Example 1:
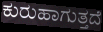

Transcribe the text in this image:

ಕುರುಹಾಗುತ್ತದೆ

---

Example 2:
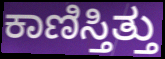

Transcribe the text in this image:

ಕಾಣಿಸ್ತಿತ್ತು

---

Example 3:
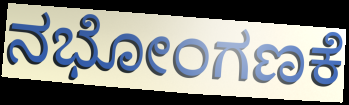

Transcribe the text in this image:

ನಭೋಂಗಣಕೆ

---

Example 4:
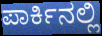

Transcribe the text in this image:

ಪಾರ್ಕಿನಲ್ಲಿ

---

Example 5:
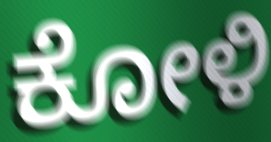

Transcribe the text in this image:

ಕೋಳಿ